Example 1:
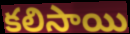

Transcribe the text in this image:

కలిసాయి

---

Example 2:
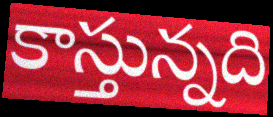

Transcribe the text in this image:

కాస్తున్నది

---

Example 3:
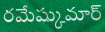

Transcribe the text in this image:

రమేష్కుమార్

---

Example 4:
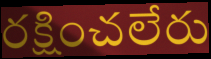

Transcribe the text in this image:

రక్షించలేరు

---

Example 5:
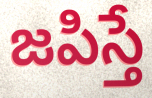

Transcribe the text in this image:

జపిస్తే